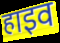
हाइव